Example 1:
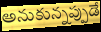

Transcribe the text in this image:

అనుకున్నప్పుడే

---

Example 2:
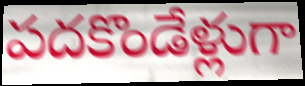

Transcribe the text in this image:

పదకొండేళ్లుగా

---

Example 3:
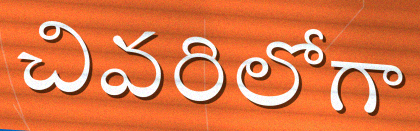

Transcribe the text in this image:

చివరిలోగా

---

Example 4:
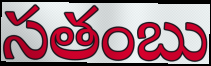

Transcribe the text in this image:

సతంబు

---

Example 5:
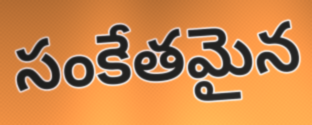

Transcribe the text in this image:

సంకేతమైన